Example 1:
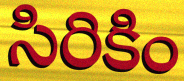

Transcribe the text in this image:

సిరికిం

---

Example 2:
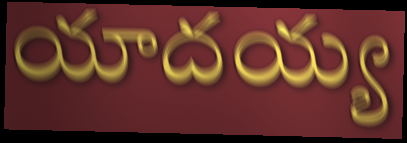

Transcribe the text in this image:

యాదయ్య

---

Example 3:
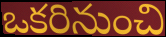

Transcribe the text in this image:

ఒకరినుంచి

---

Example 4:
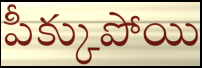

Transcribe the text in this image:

పీక్కుపోయి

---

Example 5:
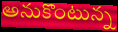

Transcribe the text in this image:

అనుకొంటున్న